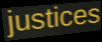
justices